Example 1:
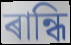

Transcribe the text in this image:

ৰান্ধি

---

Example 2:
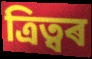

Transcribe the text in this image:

ত্ৰিত্বৰ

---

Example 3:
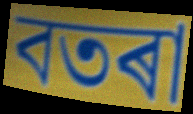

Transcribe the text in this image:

বতৰা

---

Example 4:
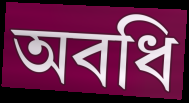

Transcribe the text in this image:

অবধি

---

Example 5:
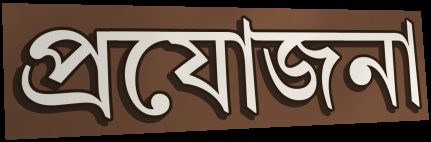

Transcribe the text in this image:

প্ৰযোজনা